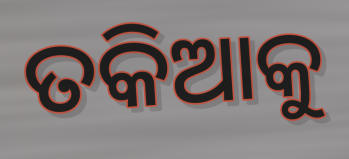
ତକିଆକୁ